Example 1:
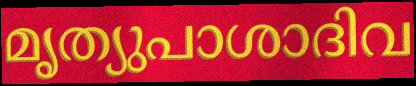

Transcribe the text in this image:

മൃത്യുപാശാദിവ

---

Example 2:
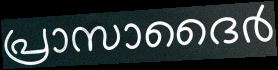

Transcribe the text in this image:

പ്രാസാദൈർ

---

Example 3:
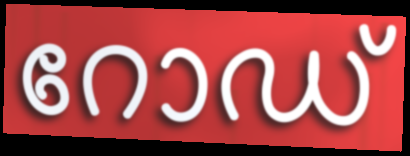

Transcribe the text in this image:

റോഡ്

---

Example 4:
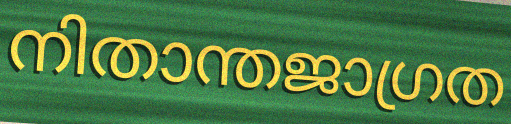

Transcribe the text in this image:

നിതാന്തജാഗ്രത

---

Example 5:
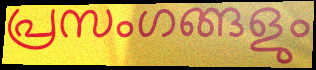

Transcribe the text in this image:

പ്രസംഗങ്ങളും